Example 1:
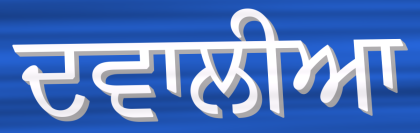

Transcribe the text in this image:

ਦਵਾਲੀਆ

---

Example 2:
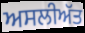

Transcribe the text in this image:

ਅਸਲੀਅੱਤ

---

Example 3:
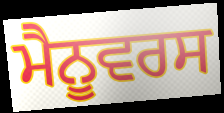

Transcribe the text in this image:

ਮੈਨੂਵਰਸ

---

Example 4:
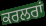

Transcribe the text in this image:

ਕਰਲਰਾਂ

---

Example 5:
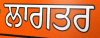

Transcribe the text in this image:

ਲਾਗਤਰ